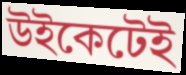
উইকেটেই